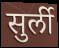
सुर्ली